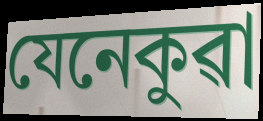
যেনেকুৱা